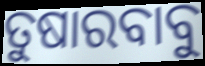
ତୁଷାରବାବୁ